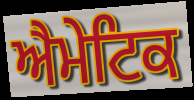
ਐਮੇਟਿਕ